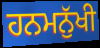
ਹਨਮਨੁੱਖੀ